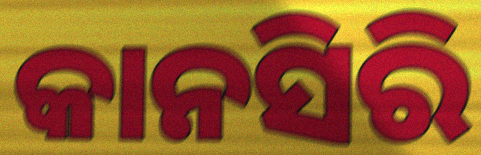
କାନସିରି